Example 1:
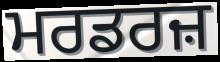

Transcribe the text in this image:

ਮਰਡਰਜ਼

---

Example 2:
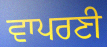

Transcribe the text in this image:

ਵਾਪਰਣੀ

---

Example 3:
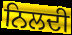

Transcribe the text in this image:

ਨਿਲਦੀ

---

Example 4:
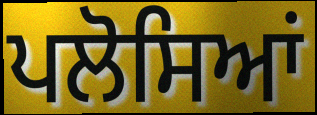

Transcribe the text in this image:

ਪਲੋਸਿਆਂ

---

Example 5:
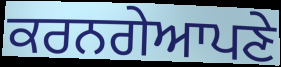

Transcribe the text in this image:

ਕਰਨਗੇਆਪਣੇ